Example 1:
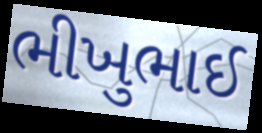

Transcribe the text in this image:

ભીખુભાઈ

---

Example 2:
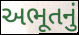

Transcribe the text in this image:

અભૂતનું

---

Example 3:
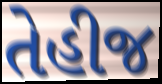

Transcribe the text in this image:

તેહીજ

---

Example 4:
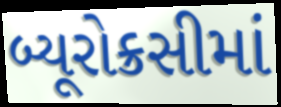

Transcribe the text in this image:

બ્યૂરોક્રસીમાં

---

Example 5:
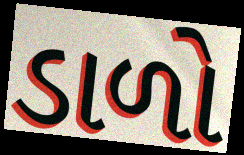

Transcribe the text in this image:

ડાળો